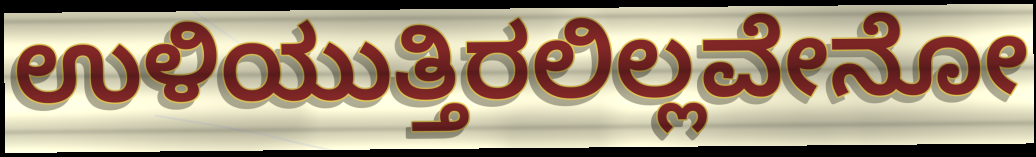
ಉಳಿಯುತ್ತಿರಲಿಲ್ಲವೇನೋ